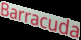
Barracuda